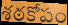
శఠకోపం